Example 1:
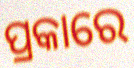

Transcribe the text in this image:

ପ୍ରକାରେ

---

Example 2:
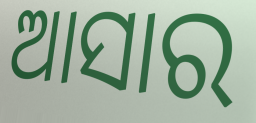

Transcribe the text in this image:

ଆସାର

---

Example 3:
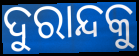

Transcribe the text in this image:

ଦୁରାନ୍ଦକୁ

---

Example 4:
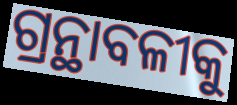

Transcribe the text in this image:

ଗ୍ରନ୍ଥାବଳୀକୁ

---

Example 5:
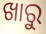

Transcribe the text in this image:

ଖାରୁ